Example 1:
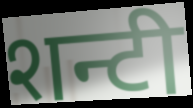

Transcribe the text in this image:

शन्टी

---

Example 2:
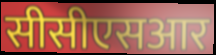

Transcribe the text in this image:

सीसीएसआर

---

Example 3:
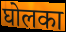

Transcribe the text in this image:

घोलका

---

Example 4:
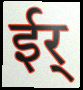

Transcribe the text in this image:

ईर्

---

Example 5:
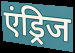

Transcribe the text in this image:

एंड्रिज